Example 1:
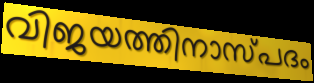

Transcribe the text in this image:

വിജയത്തിനാസ്പദം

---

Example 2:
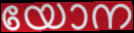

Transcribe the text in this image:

യോന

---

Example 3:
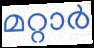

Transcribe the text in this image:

മറ്റാർ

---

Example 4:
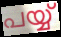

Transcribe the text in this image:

പയ്യ്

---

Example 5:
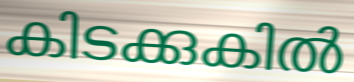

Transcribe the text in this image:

കിടക്കുകിൽ